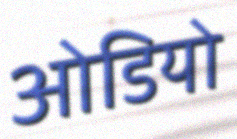
ओडियो